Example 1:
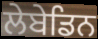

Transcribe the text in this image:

ਲੇਬੇਡਿਨ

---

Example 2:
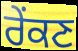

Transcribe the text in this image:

ਰੇੰਕਣ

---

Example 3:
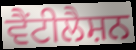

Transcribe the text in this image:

ਵੈਂਟੀਲੈਸ਼ਨ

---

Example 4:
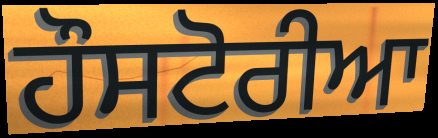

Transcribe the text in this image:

ਹੌਸਟੋਰੀਆ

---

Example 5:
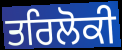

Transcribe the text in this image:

ਤਰਿਲੋਕੀ